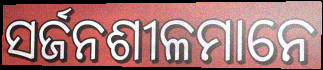
ସର୍ଜନଶୀଳମାନେ